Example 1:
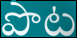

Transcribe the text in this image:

పొట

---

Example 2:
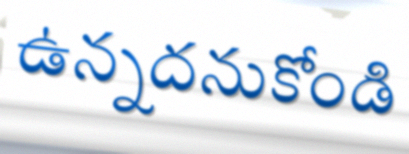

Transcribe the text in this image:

ఉన్నదనుకోండి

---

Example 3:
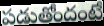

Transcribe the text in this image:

పడుతోందంటే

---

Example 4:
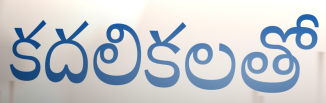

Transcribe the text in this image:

కదలికలతో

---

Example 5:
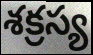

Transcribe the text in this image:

శక్రస్య